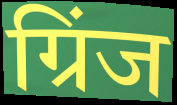
ग्रिंज